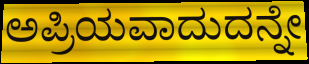
ಅಪ್ರಿಯವಾದುದನ್ನೇ